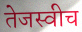
तेजस्वीच